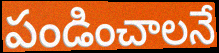
పండించాలనే